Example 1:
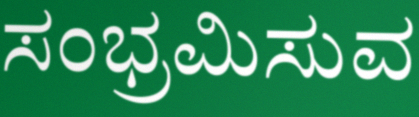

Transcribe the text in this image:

ಸಂಭ್ರಮಿಸುವ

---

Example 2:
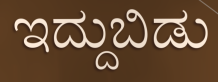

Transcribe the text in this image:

ಇದ್ದುಬಿಡು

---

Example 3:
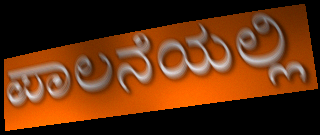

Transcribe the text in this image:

ಪಾಲನೆಯಲ್ಲಿ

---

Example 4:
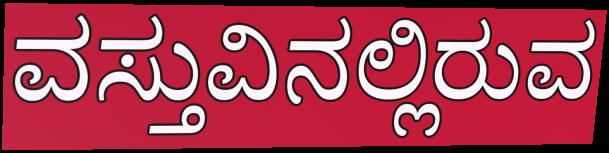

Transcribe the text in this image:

ವಸ್ತುವಿನಲ್ಲಿರುವ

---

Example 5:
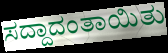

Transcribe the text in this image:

ಸದ್ದಾದಂತಾಯಿತು